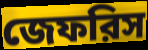
জেফরিস